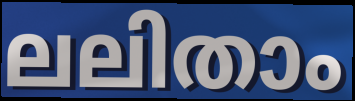
ലലിതാം